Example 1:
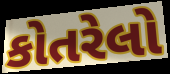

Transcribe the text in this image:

કોતરેલો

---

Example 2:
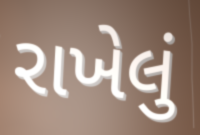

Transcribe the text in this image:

રાખેલું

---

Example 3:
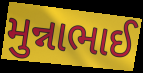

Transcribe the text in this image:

મુન્નાભાઈ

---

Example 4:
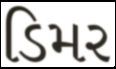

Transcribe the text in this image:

ડિમર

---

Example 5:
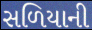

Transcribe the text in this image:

સળિયાની